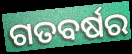
ଗତବର୍ଷର